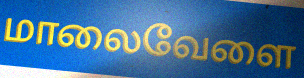
மாலைவேளை